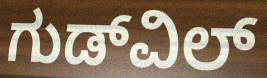
ಗುಡ್‌ವಿಲ್